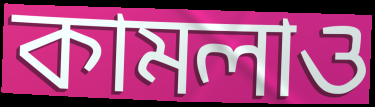
কামলাও